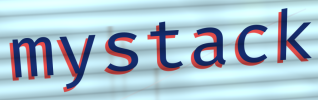
mystack